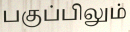
பகுப்பிலும்